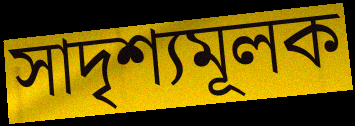
সাদৃশ্যমূলক